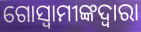
ଗୋସ୍ୱାମୀଙ୍କଦ୍ୱାରା